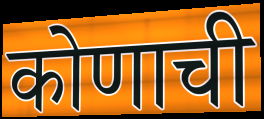
कोणाची